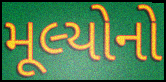
મૂલ્યોનો